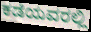
ಕಡೆಯವರಲ್ಲಿ